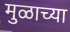
मुळाच्या